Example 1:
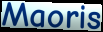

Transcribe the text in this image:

Maoris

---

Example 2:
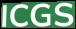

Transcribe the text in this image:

ICGS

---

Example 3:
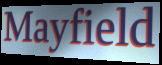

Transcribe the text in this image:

Mayfield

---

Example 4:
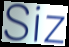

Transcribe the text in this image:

Siz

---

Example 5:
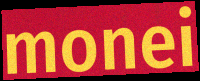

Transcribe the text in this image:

monei